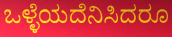
ಒಳ್ಳೆಯದೆನಿಸಿದರೂ